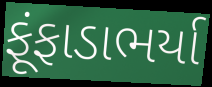
ફૂંફાડાભર્યા